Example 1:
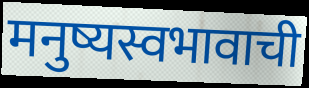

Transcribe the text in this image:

मनुष्यस्वभावाची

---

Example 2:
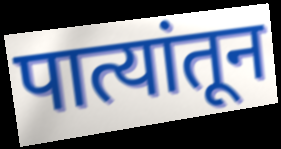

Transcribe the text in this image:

पात्यांतून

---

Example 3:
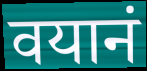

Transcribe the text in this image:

वयानं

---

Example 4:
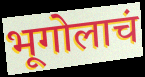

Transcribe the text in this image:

भूगोलाचं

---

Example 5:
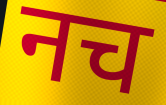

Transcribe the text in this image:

नच